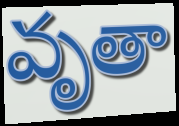
వృతా